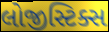
લોજીસ્ટિક્સ